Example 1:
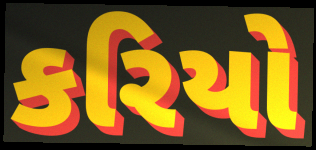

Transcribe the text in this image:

કરિયો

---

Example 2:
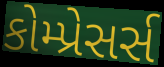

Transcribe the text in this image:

કોમ્પ્રેસર્સ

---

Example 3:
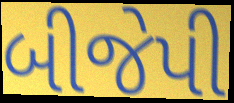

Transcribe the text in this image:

બીજેપી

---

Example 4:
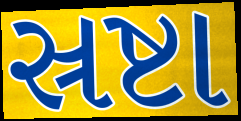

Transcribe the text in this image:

સ્રષ્ટા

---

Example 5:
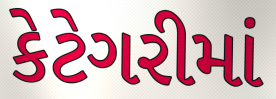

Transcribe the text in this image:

કેટેગરીમાં